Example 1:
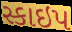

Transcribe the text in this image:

સ્કાઇપ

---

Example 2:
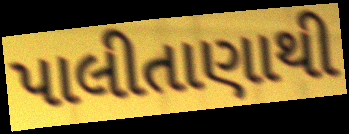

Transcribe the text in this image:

પાલીતાણાથી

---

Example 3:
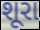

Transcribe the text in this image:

શૂરા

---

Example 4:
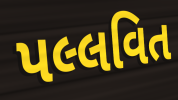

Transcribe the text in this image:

પલ્લવિત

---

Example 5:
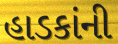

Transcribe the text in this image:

હાડકાંની